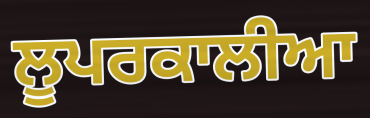
ਲੂਪਰਕਾਲੀਆ